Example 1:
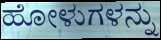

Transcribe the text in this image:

ಹೋಳುಗಳನ್ನು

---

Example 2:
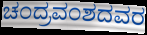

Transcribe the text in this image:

ಚಂದ್ರವಂಶದವರ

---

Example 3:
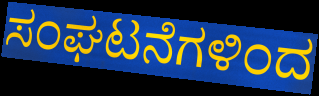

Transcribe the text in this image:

ಸಂಘಟನೆಗಳಿಂದ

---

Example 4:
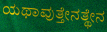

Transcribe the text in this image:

ಯಥಾವುತ್ತೇನತ್ಥೇನ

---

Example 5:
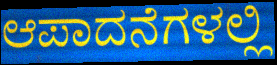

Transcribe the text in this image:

ಆಪಾದನೆಗಳಲ್ಲಿ